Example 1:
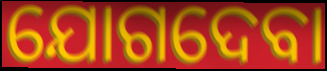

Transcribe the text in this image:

ଯୋଗଦେବା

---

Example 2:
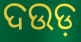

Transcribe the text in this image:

ଦଉଡ଼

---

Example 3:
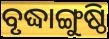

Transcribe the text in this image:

ବୃଦ୍ଧାଙ୍ଗୁଷ୍ଠି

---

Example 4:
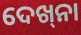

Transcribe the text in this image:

ଦେଖ୍‌ନା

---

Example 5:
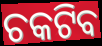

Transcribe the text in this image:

ଚକଟିବ